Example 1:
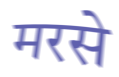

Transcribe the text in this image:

मरसे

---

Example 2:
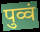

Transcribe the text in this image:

पुव्वं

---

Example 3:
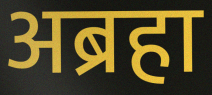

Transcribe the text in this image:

अब्रहा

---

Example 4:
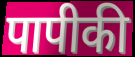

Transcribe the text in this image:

पापीकी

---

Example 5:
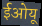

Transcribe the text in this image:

ईओयू